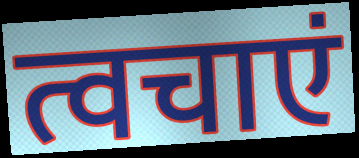
त्वचाएं